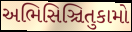
અભિસિઞ્ચિતુકામો